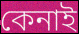
কেনাই